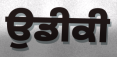
ਉਡੀਕੀ